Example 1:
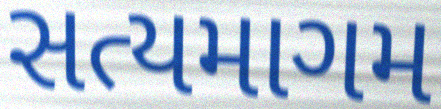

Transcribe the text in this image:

સત્યમાગમ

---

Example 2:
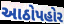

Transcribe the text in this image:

આઠોપહોર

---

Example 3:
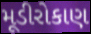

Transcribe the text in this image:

મૂડીરોકાણ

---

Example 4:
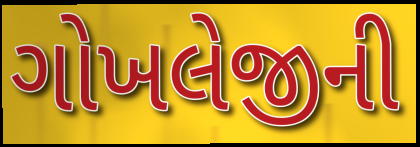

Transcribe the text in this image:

ગોખલેજીની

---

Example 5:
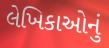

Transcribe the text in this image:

લેખિકાઓનું